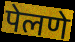
पेलणे